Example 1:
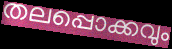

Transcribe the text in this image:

തലപ്പൊക്കവും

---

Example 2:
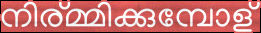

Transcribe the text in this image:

നിര്മ്മിക്കുമ്പോള്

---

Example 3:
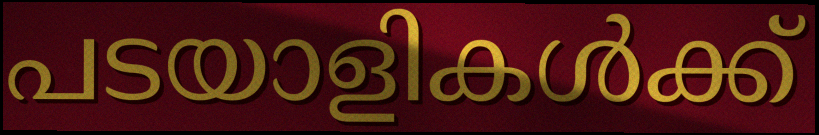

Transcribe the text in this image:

പടയാളികൾക്ക്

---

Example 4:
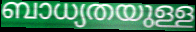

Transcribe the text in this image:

ബാധ്യതയുള്ള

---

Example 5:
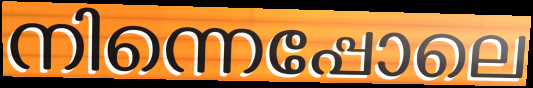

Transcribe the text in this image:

നിന്നെപ്പോലെ